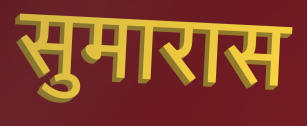
सुमारास